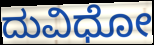
ದುವಿಧೋ